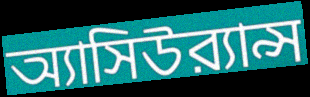
অ্যাসিউর‍্যান্স